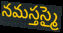
నమస్తస్మై